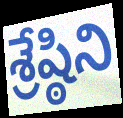
శ్రేష్ఠిని